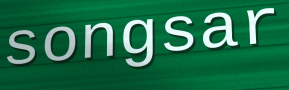
songsar